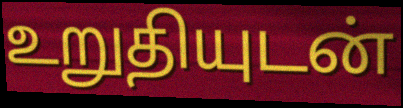
உறுதியுடன்